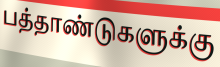
பத்தாண்டுகளுக்கு